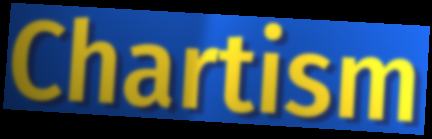
Chartism